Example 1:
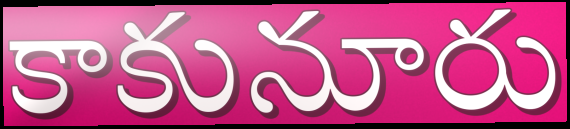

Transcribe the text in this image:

కాకునూరు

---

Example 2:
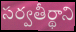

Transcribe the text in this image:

సర్వతీర్థాని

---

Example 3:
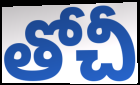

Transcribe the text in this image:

తోచీ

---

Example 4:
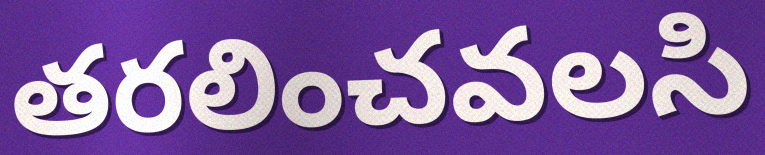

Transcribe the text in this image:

తరలించవలసి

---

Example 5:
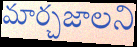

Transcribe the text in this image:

మార్చజాలని